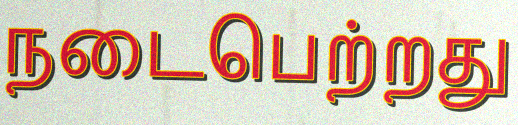
நடைபெற்றது